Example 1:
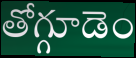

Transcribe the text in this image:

తోగ్గూడెం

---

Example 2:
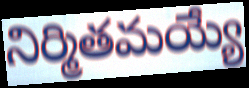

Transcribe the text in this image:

నిర్మితమయ్యే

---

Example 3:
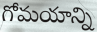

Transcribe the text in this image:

గోమయాన్ని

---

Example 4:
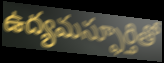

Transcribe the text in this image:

ఉద్యమస్ఫూర్తితో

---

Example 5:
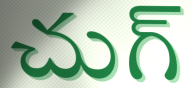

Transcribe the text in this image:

చుగ్